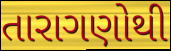
તારાગણોથી